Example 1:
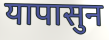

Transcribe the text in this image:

यापासुन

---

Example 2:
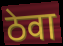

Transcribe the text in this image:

ठेवा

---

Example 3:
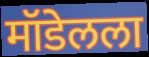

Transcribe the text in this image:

मॉडेलला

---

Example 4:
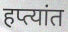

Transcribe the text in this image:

हप्त्यांत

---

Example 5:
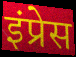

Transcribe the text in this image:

इंप्रेस